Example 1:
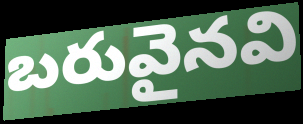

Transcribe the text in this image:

బరువైనవి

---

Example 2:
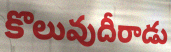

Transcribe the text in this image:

కొలువుదీరాడు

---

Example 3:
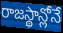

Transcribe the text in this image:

రాజస్థాన్లోనే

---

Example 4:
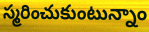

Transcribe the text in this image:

స్మరించుకుంటున్నాం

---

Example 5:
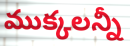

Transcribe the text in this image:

ముక్కలన్నీ